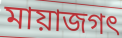
মায়াজগৎ